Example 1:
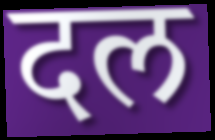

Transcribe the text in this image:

दल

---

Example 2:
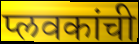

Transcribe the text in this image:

प्लवकांची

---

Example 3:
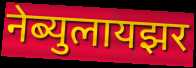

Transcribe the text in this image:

नेब्युलायझर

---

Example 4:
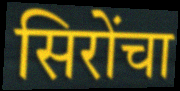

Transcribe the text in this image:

सिरोंचा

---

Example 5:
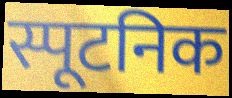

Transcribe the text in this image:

स्पूटनिक